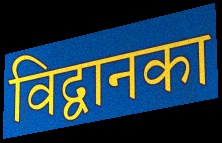
विद्वानका